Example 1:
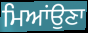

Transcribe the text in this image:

ਮਿਆਂਉਣਾ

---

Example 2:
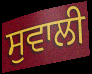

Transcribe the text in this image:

ਸੁਵਾਲੀ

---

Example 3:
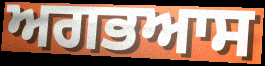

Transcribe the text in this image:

ਅਗਭਆਸ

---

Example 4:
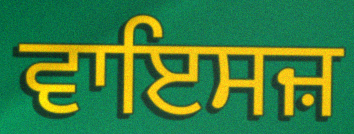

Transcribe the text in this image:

ਵਾਇਸਜ਼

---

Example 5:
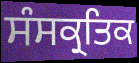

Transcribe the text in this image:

ਸੰਸਕ੍ਰਤਿਕ